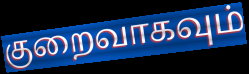
குறைவாகவும்